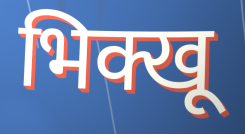
भिक्खू